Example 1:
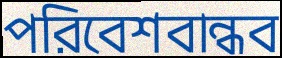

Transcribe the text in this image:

পরিবেশবান্ধব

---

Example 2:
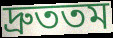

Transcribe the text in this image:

দ্রুততম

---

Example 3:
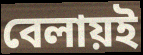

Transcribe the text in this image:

বেলায়ই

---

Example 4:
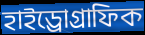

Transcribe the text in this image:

হাইড্রোগ্রাফিক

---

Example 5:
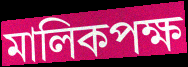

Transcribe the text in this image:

মালিকপক্ষ